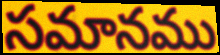
సమానము